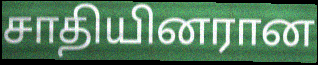
சாதியினரான